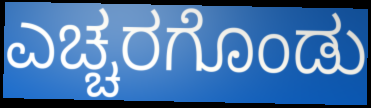
ಎಚ್ಚರಗೊಂಡು